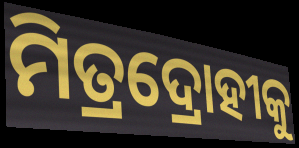
ମିତ୍ରଦ୍ରୋହୀକୁ